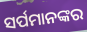
ସର୍ପମାନଙ୍କର